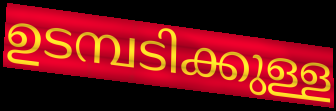
ഉടമ്പടിക്കുള്ള